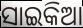
ସାଇକିଆ